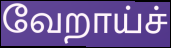
வேறாய்ச்